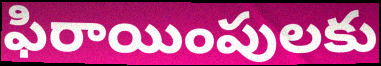
ఫిరాయింపులకు